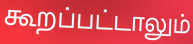
கூறப்பட்டாலும்